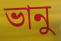
ভানু